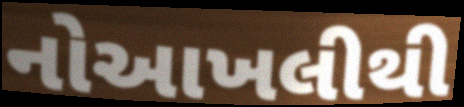
નોઆખલીથી